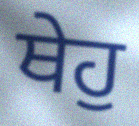
ਥੇਹੁ